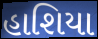
હાશિયા